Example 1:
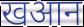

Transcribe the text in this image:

खआन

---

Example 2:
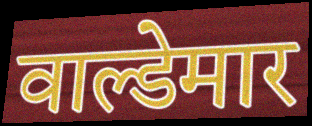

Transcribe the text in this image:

वाल्डेमार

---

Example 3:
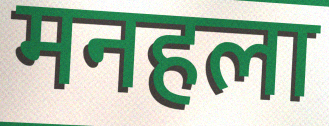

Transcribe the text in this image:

मनहला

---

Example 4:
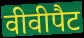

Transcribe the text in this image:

वीवीपैट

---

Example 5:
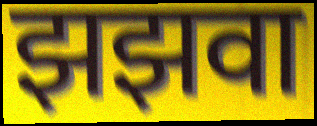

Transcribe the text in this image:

झझवा